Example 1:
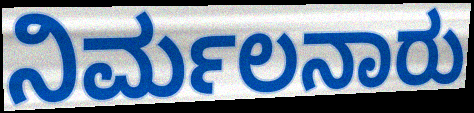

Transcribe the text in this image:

ನಿರ್ಮಲನಾರು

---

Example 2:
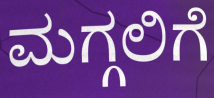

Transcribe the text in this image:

ಮಗ್ಗಲಿಗೆ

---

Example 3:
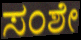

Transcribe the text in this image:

ಸಂಶೇ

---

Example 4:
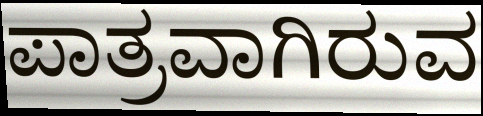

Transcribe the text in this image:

ಪಾತ್ರವಾಗಿರುವ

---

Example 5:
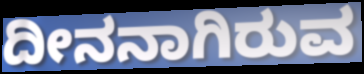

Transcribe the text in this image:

ದೀನನಾಗಿರುವ